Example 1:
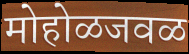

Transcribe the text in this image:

मोहोळजवळ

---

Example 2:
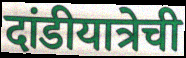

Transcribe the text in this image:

दांडीयात्रेची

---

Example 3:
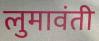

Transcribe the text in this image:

लुमावंती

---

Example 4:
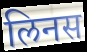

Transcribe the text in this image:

लिनस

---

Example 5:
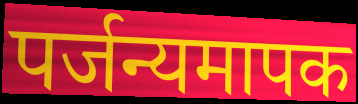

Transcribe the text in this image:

पर्जन्यमापक